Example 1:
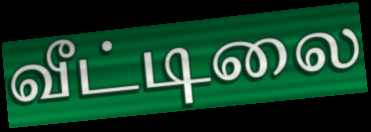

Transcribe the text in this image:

வீட்டிலை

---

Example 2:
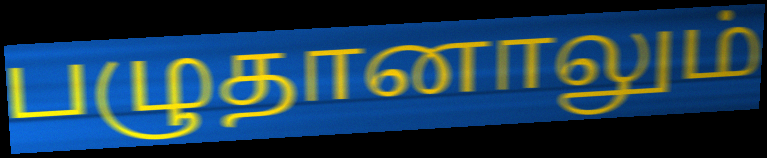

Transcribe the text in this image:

பழுதானாலும்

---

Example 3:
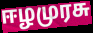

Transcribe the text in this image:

ஈழமுரசு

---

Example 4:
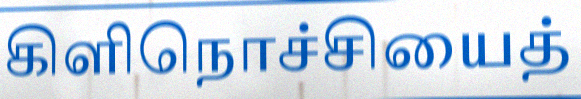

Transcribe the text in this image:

கிளிநொச்சியைத்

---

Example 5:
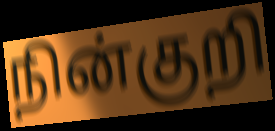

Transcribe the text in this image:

நின்குறி